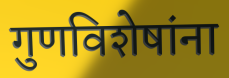
गुणविशेषांना